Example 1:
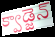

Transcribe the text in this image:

క్వాడ్జెన్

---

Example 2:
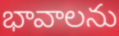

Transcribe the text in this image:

భావాలను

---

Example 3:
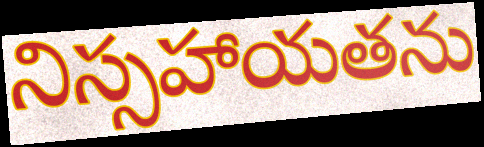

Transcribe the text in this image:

నిస్సహాయతను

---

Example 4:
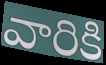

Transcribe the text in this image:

వారికి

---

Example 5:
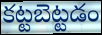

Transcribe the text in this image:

కట్టబెట్టడం